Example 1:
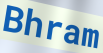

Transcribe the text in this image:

Bhram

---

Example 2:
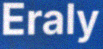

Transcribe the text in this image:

Eraly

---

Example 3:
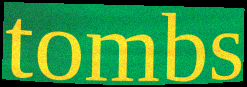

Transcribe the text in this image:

tombs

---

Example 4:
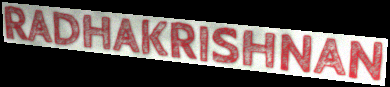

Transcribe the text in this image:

RADHAKRISHNAN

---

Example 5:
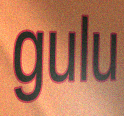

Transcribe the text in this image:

gulu